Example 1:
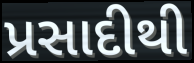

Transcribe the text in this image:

પ્રસાદીથી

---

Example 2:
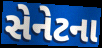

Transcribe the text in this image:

સેનેટના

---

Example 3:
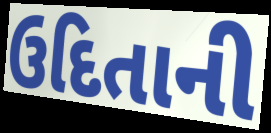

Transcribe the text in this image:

ઉદિતાની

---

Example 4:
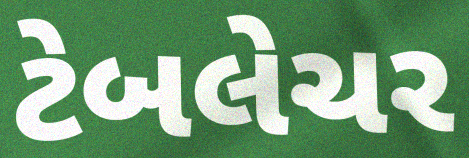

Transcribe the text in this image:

ટેબલેચર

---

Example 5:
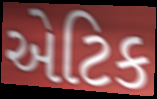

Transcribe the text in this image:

એટિક